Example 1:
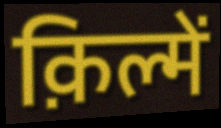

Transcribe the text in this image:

क़िल्में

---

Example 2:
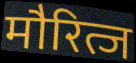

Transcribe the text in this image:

मौरित्ज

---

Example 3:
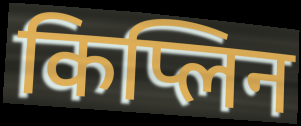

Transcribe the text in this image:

किप्लिन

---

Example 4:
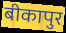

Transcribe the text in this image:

बीकापुर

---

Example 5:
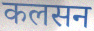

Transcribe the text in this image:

कलसन